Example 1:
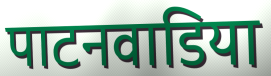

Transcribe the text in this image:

पाटनवाडिया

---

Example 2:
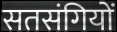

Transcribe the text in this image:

सतसंगियों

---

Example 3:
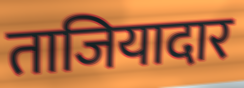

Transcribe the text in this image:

ताजियादार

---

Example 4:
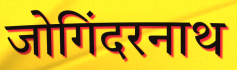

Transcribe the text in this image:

जोगिंदरनाथ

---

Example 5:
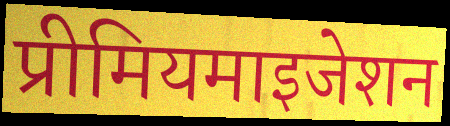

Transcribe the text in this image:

प्रीमियमाइजेशन